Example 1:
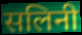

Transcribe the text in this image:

सलिनी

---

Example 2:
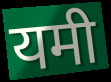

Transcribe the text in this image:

यमी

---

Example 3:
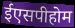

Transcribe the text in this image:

ईएसपीहोम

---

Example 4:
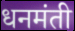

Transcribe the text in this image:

धनमंती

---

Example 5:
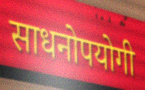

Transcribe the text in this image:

साधनोपयोगी